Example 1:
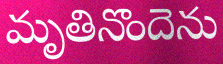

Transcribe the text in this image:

మృతినొందెను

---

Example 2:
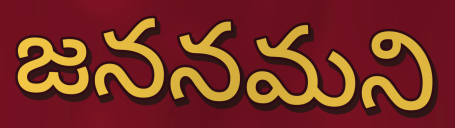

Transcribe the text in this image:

జననమని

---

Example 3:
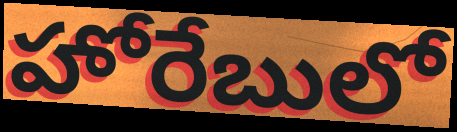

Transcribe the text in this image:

హోరేబులో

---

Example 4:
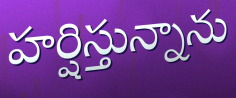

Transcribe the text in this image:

హర్షిస్తున్నాను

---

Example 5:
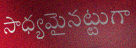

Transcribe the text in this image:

సాధ్యమైనట్టుగా